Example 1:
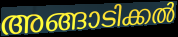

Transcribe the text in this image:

അങ്ങാടിക്കൽ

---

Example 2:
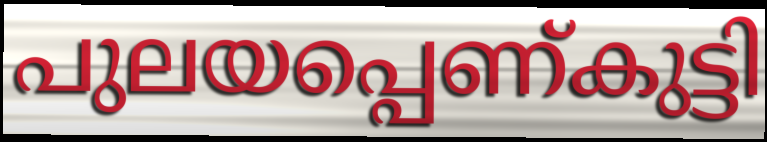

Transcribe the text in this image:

പുലയപ്പെണ്കുട്ടി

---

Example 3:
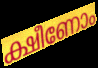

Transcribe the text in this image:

ക്ഷീണോം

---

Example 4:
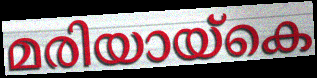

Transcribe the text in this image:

മരിയായ്കെ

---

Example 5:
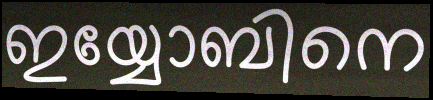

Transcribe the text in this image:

ഇയ്യോബിനെ